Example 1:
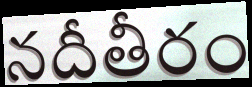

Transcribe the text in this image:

నదీతీరం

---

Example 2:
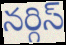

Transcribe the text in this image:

నర్గిస్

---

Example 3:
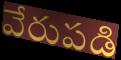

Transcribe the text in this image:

వేరుపడి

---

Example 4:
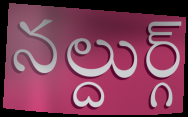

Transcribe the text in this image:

నల్దుర్గ్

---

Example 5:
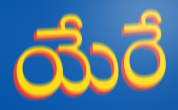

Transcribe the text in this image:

యేరే